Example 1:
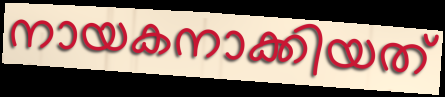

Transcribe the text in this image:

നായകനാക്കിയത്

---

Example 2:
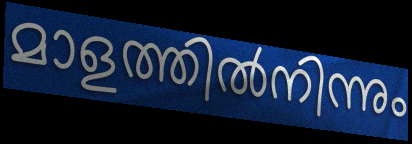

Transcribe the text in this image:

മാളത്തിൽനിന്നും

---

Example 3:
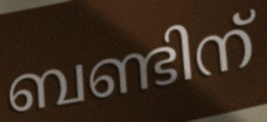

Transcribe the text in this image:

ബണ്ടിന്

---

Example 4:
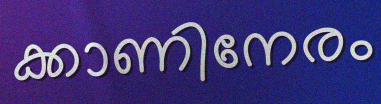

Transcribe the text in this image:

ക്കാണിനേരം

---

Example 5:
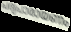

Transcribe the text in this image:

പദ്യപാരായണം